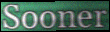
Sooner